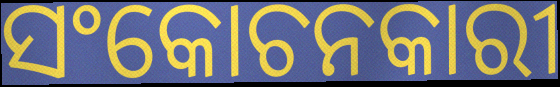
ସଂକୋଚନକାରୀ